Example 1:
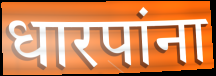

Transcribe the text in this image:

धारपांना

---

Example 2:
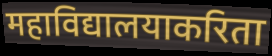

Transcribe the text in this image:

महाविद्यालयाकरिता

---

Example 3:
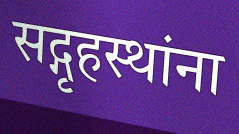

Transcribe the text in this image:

सद्गृहस्थांना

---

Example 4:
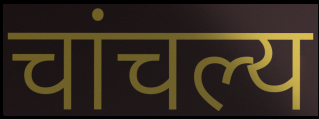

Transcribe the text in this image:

चांचल्य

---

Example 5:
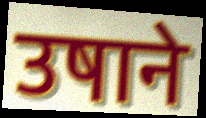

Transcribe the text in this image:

उषाने